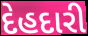
દેહદારી